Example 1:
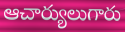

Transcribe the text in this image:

ఆచార్యులుగారు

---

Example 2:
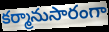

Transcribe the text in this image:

కర్మానుసారంగా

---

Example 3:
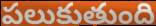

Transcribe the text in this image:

పలుకుతుంది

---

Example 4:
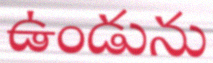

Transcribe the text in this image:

ఉండును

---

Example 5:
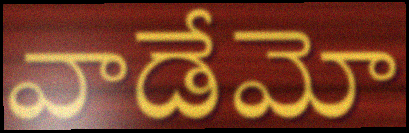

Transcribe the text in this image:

వాడేమో